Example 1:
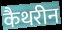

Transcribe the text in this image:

कैथरीन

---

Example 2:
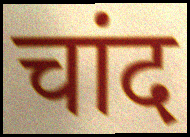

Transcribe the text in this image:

चांद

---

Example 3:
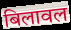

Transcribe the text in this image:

बिलावल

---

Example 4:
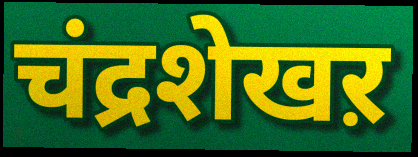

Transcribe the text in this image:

चंद्रशेखऱ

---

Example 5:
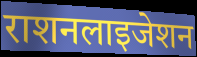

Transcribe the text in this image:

राशनलाइजेशन